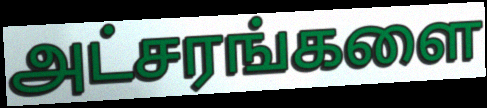
அட்சரங்களை